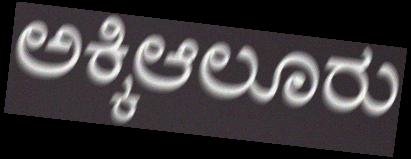
ಅಕ್ಕಿಆಲೂರು